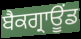
ਬੈਕਗ੍ਰਾਊਂਡ